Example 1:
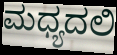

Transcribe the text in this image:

ಮಧ್ಯದಲಿ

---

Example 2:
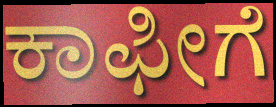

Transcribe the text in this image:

ಕಾಫೀಗೆ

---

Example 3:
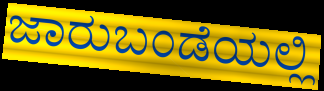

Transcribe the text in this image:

ಜಾರುಬಂಡೆಯಲ್ಲಿ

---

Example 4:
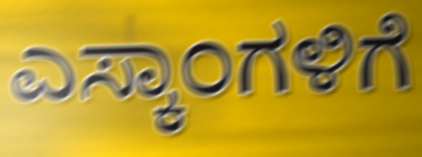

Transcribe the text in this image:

ಎಸ್ಕಾಂಗಳಿಗೆ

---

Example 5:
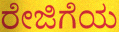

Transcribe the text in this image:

ರೇಜಿಗೆಯ